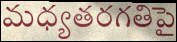
మధ్యతరగతిపై